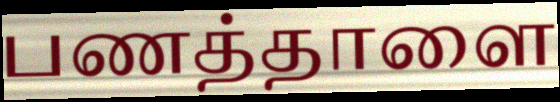
பணத்தாளை